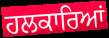
ਹਲਕਾਰਿਆਂ